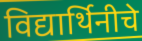
विद्यार्थिनीचे